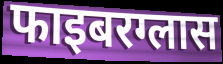
फाइबरग्लास